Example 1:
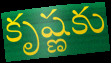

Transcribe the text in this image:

కృష్ణకు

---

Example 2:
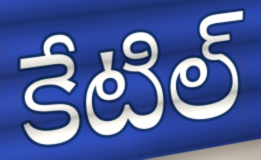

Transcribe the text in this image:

కేటిల్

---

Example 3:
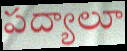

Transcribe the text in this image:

పద్యాలూ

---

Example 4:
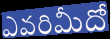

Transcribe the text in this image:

ఎవరిమీదో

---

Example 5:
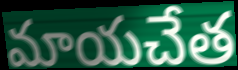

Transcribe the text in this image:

మాయచేత